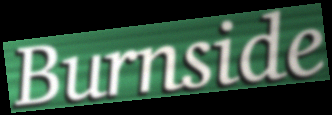
Burnside